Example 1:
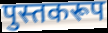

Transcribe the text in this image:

पुस्तकरूप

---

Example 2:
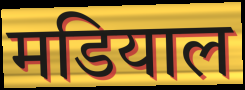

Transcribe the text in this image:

मडियाल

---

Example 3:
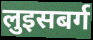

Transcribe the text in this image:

लुइसबर्ग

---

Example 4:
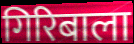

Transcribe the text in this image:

गिरिबाला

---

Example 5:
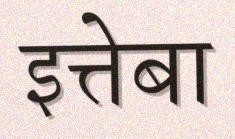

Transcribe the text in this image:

इत्तेबा